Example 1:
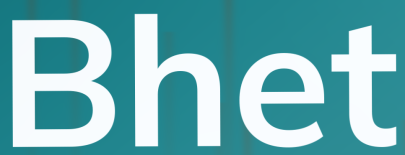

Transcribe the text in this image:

Bhet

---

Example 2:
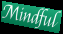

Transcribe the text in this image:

Mindful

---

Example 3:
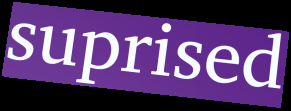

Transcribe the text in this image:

suprised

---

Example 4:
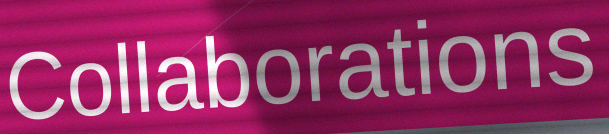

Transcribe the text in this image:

Collaborations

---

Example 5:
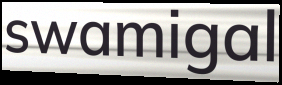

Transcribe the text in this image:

swamigal